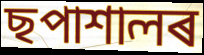
ছপাশালৰ